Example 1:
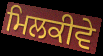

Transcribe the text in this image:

ਮਿਲਕੀਵੇ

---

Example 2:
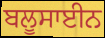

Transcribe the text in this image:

ਬਲੂਸਾਈਨ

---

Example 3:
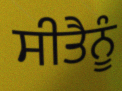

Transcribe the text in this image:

ਸੀਤੈਨੂੰ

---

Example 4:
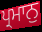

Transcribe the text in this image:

ਪ੍ਰਮਾਨੁ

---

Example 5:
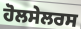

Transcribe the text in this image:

ਹੋਲਸੇਲਰਸ